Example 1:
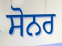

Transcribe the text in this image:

ਸੋਨਰ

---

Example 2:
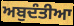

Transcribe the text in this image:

ਅਬੁਦੰਤੀਆ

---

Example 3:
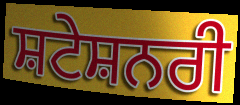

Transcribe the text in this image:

ਸ਼ਟੇਸ਼ਨਰੀ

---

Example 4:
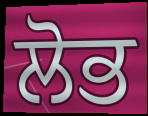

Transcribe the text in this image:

ਲੋਭ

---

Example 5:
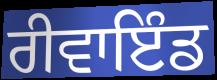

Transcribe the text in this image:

ਰੀਵਾਇੰਡ